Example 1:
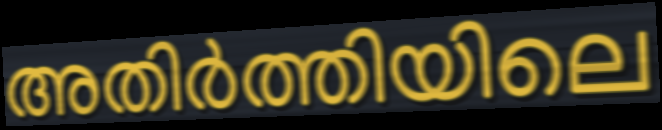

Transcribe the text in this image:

അതിർത്തിയിലെ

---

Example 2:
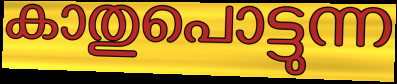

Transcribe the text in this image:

കാതുപൊട്ടുന്ന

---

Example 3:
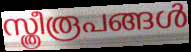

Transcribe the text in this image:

സ്ത്രീരൂപങ്ങൾ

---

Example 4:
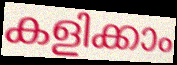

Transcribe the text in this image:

കളിക്കാം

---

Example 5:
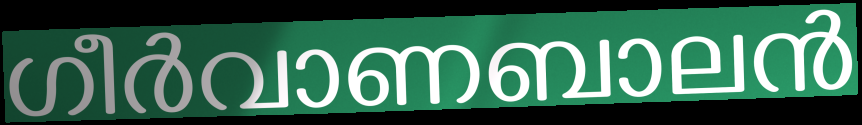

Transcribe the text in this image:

ഗീർവാണബാലൻ